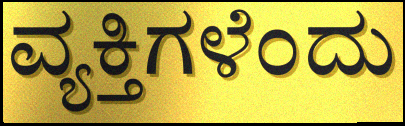
ವ್ಯಕ್ತಿಗಳೆಂದು